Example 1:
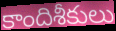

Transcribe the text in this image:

కాందిశీకులు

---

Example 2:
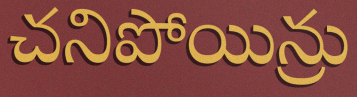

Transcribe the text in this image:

చనిపోయిన్రు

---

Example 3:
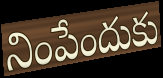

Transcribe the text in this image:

నింపేందుకు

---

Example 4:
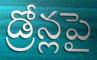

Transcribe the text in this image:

డ్రోన్లపై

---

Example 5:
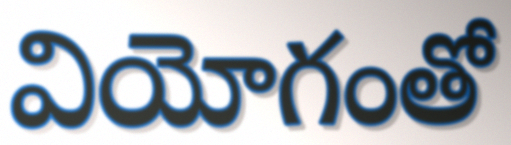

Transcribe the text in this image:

వియోగంతో